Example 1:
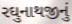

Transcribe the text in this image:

રઘુનાથજીનું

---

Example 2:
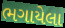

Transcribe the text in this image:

ભગાયેલા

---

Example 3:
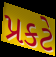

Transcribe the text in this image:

પ્રકટે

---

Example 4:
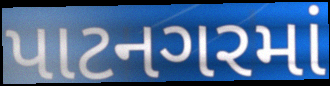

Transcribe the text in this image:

પાટનગરમાં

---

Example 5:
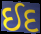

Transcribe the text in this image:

ઈદ